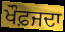
ਖੌਫ਼ਜਦਾ